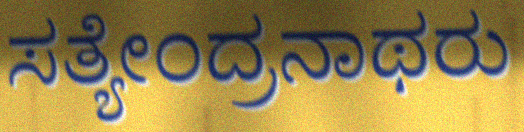
ಸತ್ಯೇಂದ್ರನಾಥರು